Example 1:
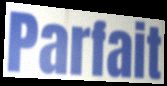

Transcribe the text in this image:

Parfait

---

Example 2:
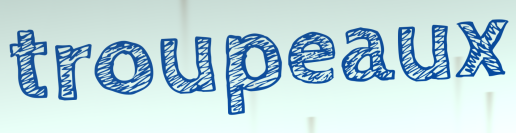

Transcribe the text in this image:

troupeaux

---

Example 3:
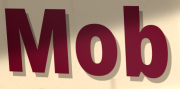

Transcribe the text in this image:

Mob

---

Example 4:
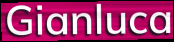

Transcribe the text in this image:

Gianluca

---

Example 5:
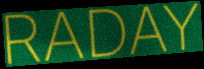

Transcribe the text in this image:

RADAY